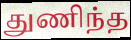
துணிந்த